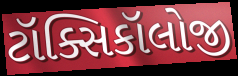
ટૉક્સિકૉલોજી